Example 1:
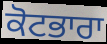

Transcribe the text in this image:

ਕੋਟਭਾਰਾ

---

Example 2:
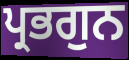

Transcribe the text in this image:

ਪ੍ਰਭਗੁਨ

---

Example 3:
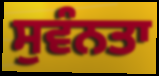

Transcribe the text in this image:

ਸੁਵੰਨਤਾ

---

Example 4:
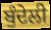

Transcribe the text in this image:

ਬੁੰਦੇਲੀ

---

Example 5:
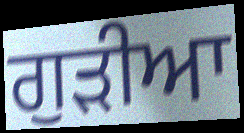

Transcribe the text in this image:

ਗੁੜੀਆ